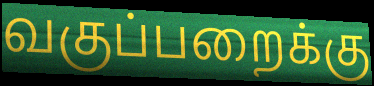
வகுப்பறைக்கு